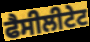
ਫੈਸੀਲੀਟੇਟ